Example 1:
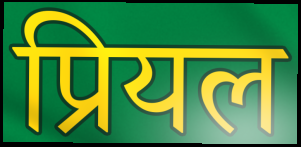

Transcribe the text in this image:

प्रियल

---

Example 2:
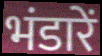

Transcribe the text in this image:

भंडारें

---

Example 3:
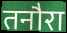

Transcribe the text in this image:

तनौरा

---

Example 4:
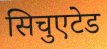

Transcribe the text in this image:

सिचुएटेड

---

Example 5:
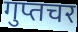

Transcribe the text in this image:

गुप्तचर